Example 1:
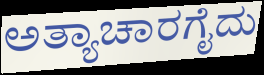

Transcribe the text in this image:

ಅತ್ಯಾಚಾರಗೈದು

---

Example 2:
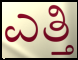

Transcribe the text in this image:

ಎತ್ತಿ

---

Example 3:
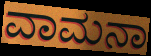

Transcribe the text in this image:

ವಾಮನಾ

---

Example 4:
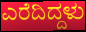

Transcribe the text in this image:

ಎರೆದಿದ್ದಳು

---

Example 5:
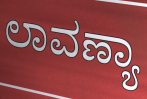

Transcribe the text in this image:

ಲಾವಣ್ಯಾ